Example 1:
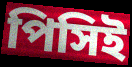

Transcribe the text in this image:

পিসিই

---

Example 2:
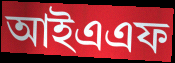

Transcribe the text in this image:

আইএএফ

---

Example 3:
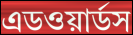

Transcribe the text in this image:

এডওয়ার্ডস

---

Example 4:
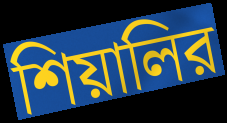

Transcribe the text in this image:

শিয়ালির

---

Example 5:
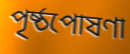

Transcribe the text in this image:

পৃষ্ঠপোষণা